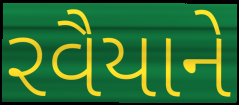
રવૈયાને